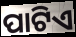
ପାଟିଏ